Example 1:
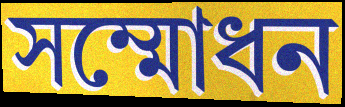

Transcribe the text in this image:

সম্মোধন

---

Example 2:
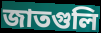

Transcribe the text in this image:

জাতগুলি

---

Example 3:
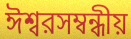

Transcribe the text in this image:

ঈশ্বরসম্বন্ধীয়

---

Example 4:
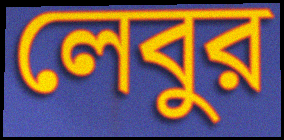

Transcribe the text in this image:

লেবুর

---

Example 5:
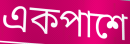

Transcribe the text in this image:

একপাশে